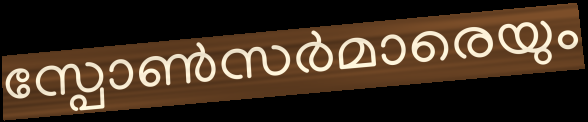
സ്പോൺസർമാരെയും